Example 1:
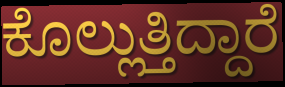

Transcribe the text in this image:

ಕೊಲ್ಲುತ್ತಿದ್ದಾರೆ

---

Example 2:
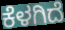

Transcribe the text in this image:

ಕೆಳಗಿದೆ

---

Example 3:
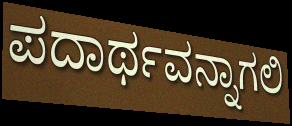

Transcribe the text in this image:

ಪದಾರ್ಥವನ್ನಾಗಲಿ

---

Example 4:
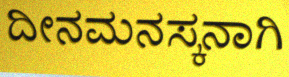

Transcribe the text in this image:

ದೀನಮನಸ್ಕನಾಗಿ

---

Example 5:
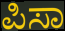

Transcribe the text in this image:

ಪಿಸಾ